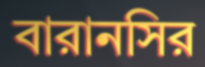
বারানসির